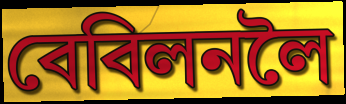
বেবিলনলৈ